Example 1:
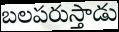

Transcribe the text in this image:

బలపరుస్తాడు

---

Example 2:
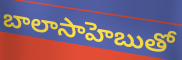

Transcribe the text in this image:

బాలాసాహెబుతో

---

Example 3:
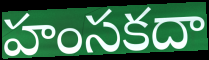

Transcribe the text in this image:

హంసకదా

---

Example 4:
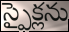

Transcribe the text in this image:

స్పైక్లను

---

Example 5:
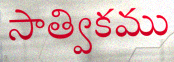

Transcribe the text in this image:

సాత్వికము